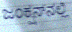
ಜಂಕ್ಷನ್‌ನಲ್ಲಿ